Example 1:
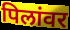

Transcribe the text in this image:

पिलांवर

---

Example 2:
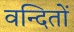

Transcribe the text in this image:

वन्दितों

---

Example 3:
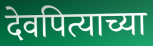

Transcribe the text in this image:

देवपित्याच्या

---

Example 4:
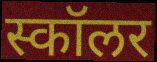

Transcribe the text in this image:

स्कॉलर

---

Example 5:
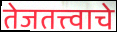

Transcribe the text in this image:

तेजतत्त्वाचे